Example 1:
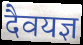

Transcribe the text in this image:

दैवयज्ञ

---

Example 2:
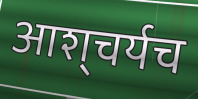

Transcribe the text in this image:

आश्चर्यच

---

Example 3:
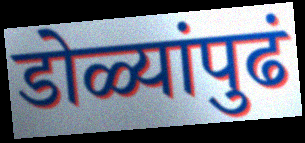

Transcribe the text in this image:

डोळ्यांपुढं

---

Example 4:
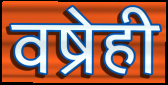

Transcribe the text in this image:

वष्रेही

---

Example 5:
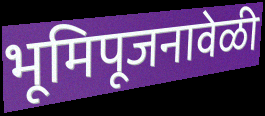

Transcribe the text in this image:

भूमिपूजनावेळी